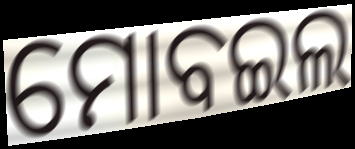
ମୋବଇଲ